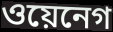
ওয়েনেগ